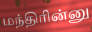
மந்திரின்னு